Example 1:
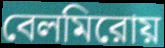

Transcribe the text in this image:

বেলমিরোয়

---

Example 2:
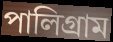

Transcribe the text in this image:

পালিগ্রাম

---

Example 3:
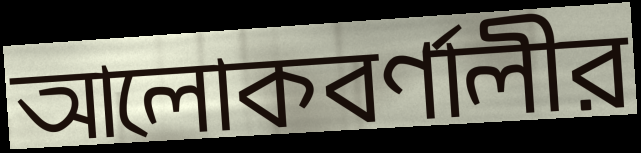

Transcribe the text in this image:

আলোকবর্ণালীর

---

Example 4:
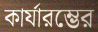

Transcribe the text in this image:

কার্যারম্ভের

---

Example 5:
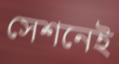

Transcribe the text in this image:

সেশনেই